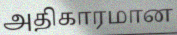
அதிகாரமான